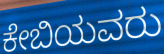
ಕೇಬಿಯವರು